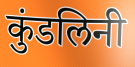
कुंडलिनी